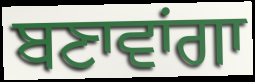
ਬਣਾਵਾਂਗਾ